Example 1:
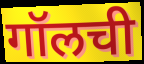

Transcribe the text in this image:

गॉलची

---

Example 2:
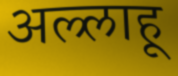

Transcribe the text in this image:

अल्लाहू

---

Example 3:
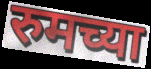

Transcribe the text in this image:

रुमच्या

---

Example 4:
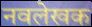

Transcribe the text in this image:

नवलेखक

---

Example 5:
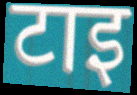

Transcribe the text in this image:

टाइ